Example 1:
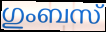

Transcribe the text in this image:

ഗുംബസ്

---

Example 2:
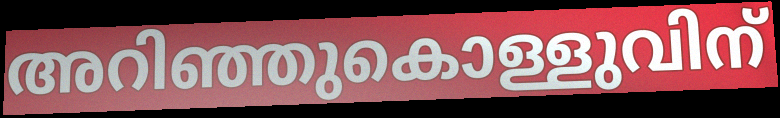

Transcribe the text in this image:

അറിഞ്ഞുകൊള്ളുവിന്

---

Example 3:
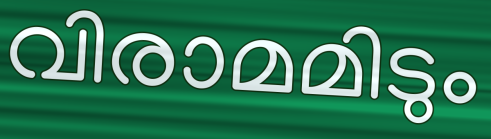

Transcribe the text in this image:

വിരാമമിടും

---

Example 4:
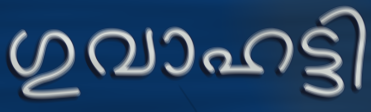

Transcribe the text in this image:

ഗുവാഹട്ടി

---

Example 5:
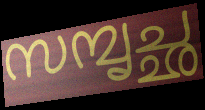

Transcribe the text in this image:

സമ്പൃച്ഛ